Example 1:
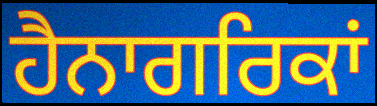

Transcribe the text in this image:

ਹੈਨਾਗਰਿਕਾਂ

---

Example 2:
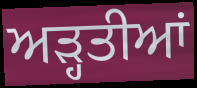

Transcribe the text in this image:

ਅੜ੍ਹਤੀਆਂ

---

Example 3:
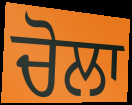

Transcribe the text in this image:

ਚੋਲਾ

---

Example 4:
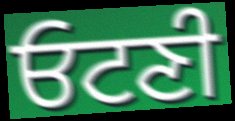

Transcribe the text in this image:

ਓਟਣੀ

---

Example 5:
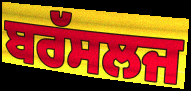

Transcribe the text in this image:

ਬਰੱਸਲਜ